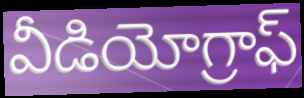
వీడియోగ్రాఫ్